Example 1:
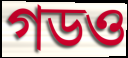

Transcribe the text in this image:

গডও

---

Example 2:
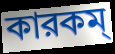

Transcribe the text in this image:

কারকম্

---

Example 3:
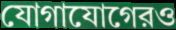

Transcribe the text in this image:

যোগাযোগেরও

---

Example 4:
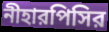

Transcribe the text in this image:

নীহারপিসির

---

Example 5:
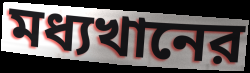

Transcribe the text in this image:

মধ্যখানের